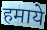
हमाये